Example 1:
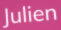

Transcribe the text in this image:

Julien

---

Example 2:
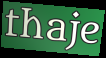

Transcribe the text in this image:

thaje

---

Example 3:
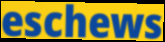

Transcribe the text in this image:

eschews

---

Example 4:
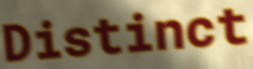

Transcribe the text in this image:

Distinct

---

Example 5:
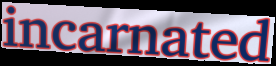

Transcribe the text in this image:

incarnated